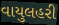
વાયુલહરી